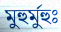
মুহুর্মুহুঃ